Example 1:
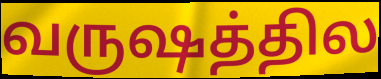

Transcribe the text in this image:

வருஷத்தில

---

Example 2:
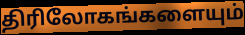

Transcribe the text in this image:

திரிலோகங்களையும்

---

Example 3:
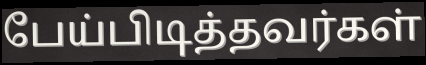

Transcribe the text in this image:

பேய்பிடித்தவர்கள்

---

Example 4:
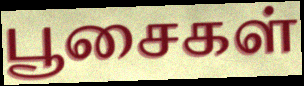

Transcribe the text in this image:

பூசைகள்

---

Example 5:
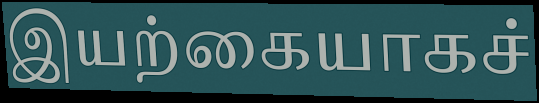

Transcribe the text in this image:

இயற்கையாகச்